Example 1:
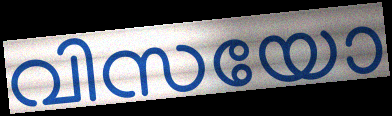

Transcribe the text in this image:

വിസയോ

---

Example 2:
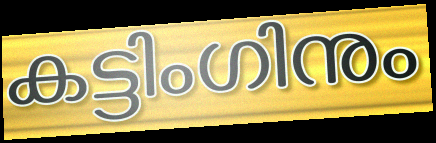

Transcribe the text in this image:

കട്ടിംഗിനും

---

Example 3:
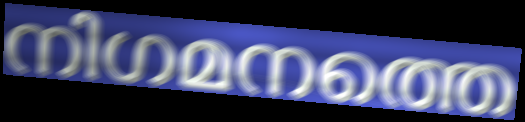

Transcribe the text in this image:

നിഗമനത്തെ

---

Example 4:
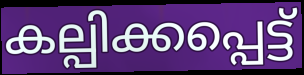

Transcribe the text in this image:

കല്പിക്കപ്പെട്ട്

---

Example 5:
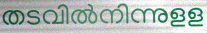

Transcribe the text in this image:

തടവിൽനിന്നുളള